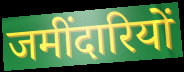
जमींदारियों